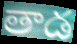
తాడ